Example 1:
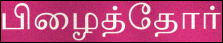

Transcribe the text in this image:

பிழைத்தோர்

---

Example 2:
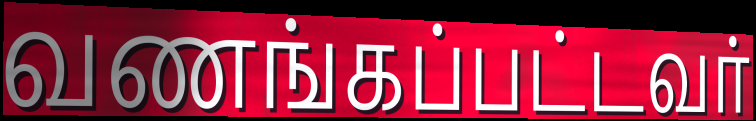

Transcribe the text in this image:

வணங்கப்பட்டவர்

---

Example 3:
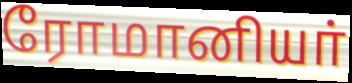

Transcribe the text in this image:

ரோமானியர்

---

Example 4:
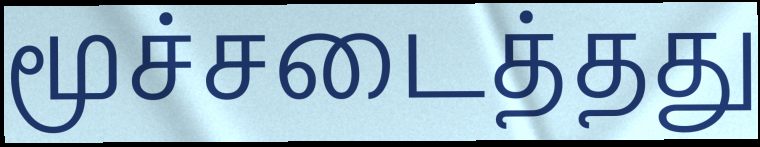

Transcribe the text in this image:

மூச்சடைத்தது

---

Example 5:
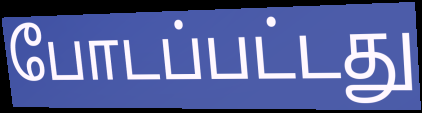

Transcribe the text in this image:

போடப்பட்டது